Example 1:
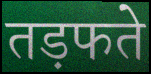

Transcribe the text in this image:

तड़फते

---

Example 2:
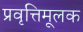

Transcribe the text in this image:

प्रवृत्तिमूलक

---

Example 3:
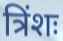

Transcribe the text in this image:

त्रिंशः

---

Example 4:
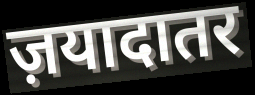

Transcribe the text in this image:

ज़यादातर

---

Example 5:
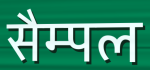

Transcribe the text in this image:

सैम्पल